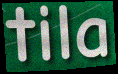
tila